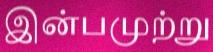
இன்பமுற்று